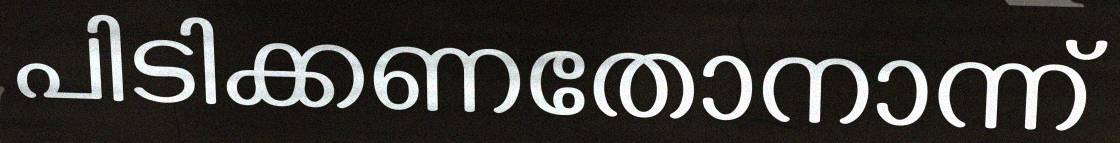
പിടിക്കണതോനാന്ന്